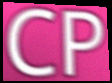
CP